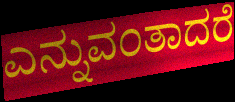
ಎನ್ನುವಂತಾದರೆ